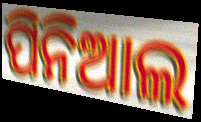
ପିନିଆଲ